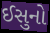
ઈસુનો